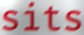
sits